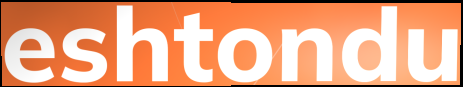
eshtondu